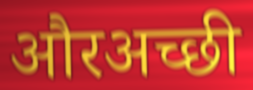
औरअच्छी